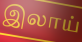
இலாய்